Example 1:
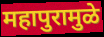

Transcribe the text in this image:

महापुरामुळे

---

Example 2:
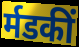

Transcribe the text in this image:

र्मडकीं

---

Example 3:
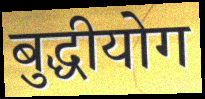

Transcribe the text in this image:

बुद्धीयोग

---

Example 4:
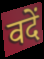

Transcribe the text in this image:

वदें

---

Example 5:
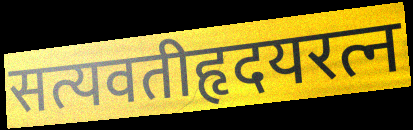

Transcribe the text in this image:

सत्यवतीहृदयरत्न